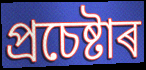
প্ৰচেষ্টাৰ